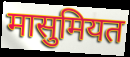
मासुमियत